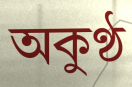
অকুণ্ঠ